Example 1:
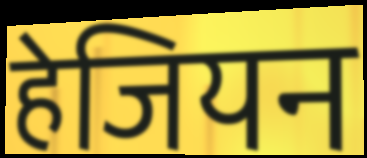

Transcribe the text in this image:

हेजियन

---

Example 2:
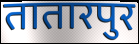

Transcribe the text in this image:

तातारपुर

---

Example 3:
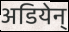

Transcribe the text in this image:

अडियेन्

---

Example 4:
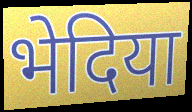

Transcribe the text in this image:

भेदिया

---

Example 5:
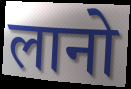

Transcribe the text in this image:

लानो